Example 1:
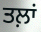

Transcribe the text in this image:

ਤਲ਼ਾਂ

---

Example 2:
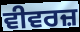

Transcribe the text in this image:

ਵੀਵਰਜ਼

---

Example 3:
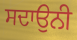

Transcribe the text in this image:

ਸਦਾਉਨੀ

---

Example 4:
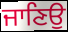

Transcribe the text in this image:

ਜਾਣਿਉ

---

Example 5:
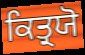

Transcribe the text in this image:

ਕਿਤ੍ਰਯੋ